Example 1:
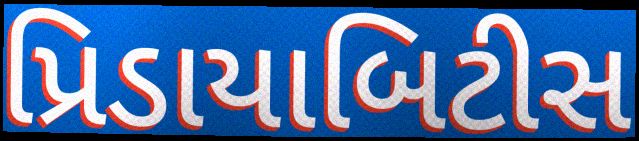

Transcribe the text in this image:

પ્રિડાયાબિટીસ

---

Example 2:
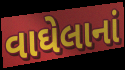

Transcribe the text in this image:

વાઘેલાનાં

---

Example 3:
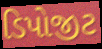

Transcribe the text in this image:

ડિપોજીટ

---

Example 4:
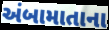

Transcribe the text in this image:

અંબામાતાના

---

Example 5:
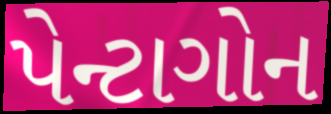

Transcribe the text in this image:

પેન્ટાગોન